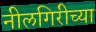
नीलगिरीच्या